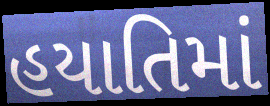
હયાતિમાં